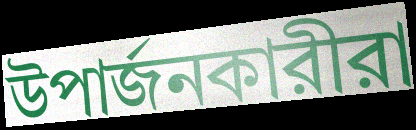
উপার্জনকারীরা